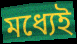
মধ্যেই